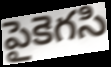
పైకెగసి